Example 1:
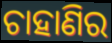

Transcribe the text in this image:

ଚାହାଣିର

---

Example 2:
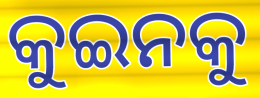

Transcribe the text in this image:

କୁଇନକୁ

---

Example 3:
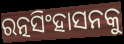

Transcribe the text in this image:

ରତ୍ନସିଂହାସନକୁ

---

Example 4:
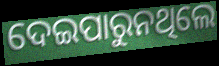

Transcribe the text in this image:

ଦେଇପାରୁନଥିଲେ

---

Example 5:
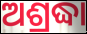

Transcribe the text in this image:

ଅଶ୍ରଦ୍ଧା